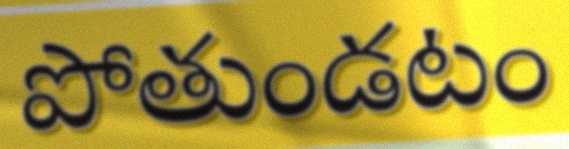
పోతుండటం